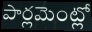
పార్లమెంట్లో